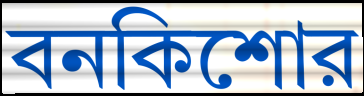
বনকিশোর